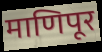
माणिपूर